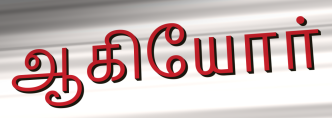
ஆகியோர்